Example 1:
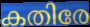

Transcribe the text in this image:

കതിരേ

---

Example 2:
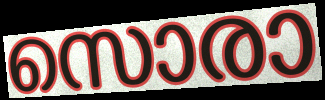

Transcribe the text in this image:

സൊരാ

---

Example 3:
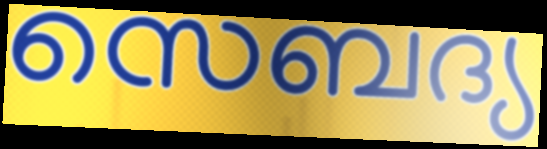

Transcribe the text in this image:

സെബദ്യ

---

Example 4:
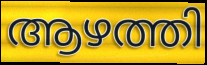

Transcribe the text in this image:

ആഴത്തി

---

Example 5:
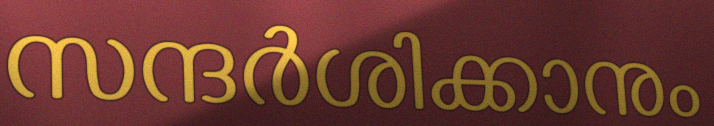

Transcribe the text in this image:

സന്ദർശിക്കാനും